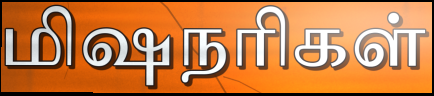
மிஷநரிகள்